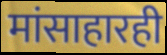
मांसाहारही